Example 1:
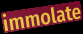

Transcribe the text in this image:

immolate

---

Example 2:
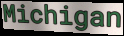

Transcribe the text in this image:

Michigan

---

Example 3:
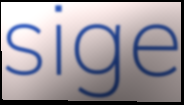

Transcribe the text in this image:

sige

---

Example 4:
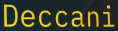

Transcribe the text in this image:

Deccani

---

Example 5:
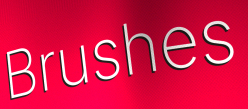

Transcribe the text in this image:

Brushes